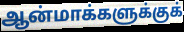
ஆன்மாக்களுக்குக்